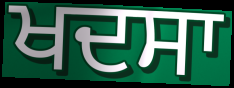
ਖਦਸਾ